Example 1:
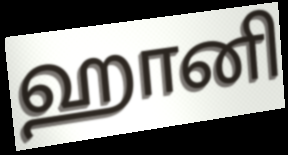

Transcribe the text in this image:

ஹானி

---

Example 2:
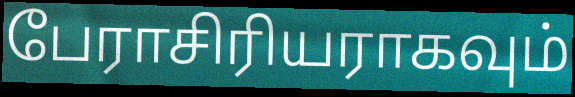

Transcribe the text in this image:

பேராசிரியராகவும்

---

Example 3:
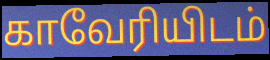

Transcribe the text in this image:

காவேரியிடம்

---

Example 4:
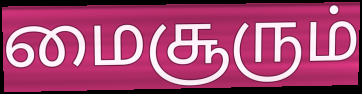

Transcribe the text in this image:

மைசூரும்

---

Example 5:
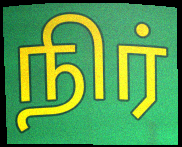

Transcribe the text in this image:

நிர்